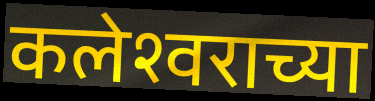
कलेश्वराच्या